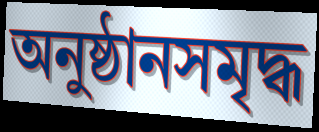
অনুষ্ঠানসমৃদ্ধ